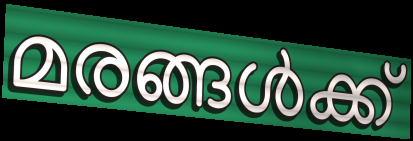
മരങ്ങൾക്ക്